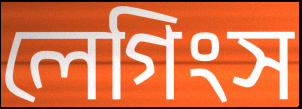
লেগিংস